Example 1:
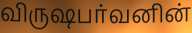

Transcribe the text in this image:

விருஷபர்வனின்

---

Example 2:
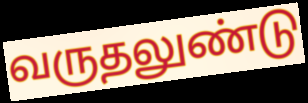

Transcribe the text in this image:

வருதலுண்டு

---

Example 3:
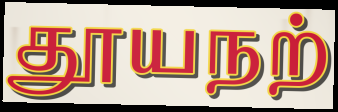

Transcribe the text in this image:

தூயநற்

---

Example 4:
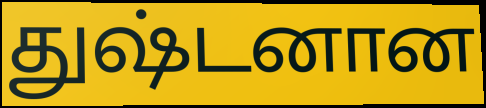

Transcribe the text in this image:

துஷ்டனான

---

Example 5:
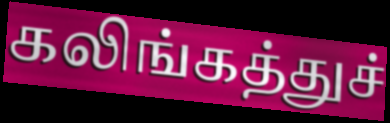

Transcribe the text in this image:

கலிங்கத்துச்